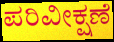
ಪರಿವೀಕ್ಷಣೆ